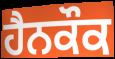
ਹੈਨਕੌਕ